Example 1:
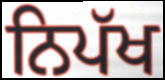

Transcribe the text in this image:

ਨਿਪੱਖ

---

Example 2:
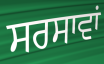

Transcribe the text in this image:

ਸਰਸਾਵਾਂ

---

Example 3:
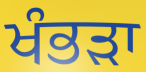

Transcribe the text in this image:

ਖੰਭੜਾ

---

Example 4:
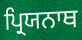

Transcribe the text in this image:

ਪ੍ਰਿਯਨਾਥ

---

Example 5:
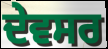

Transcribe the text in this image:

ਦੇਵਸਰ